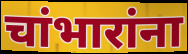
चांभारांना